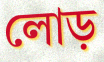
লোড়